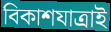
বিকাশযাত্ৰাই